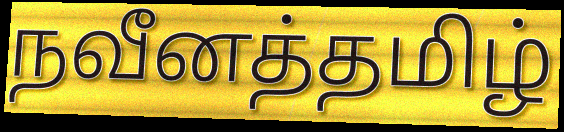
நவீனத்தமிழ்